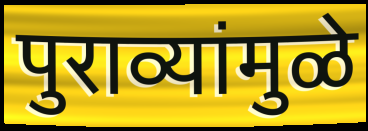
पुराव्यांमुळे